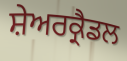
ਸ਼ੇਅਰਕ੍ਰੈਡਲ